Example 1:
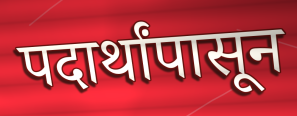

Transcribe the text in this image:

पदार्थांपासून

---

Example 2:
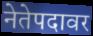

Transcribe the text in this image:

नेतेपदावर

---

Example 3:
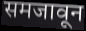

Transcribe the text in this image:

समजावून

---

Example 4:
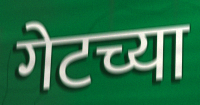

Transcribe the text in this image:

गेटच्या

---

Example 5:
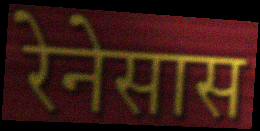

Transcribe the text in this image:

रेनेसास